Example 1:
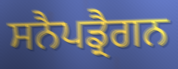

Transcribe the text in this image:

ਸਨੈਪਡ੍ਰੈਗਨ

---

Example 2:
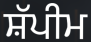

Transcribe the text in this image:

ਸ਼ੱਪੀਮ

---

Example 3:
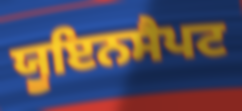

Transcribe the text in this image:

ਯੂਇਨਸੈਪਟ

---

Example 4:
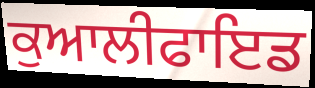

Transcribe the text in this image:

ਕੁਆਲੀਫਾਇਡ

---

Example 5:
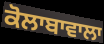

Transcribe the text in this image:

ਕੋਲਾਬਾਵਾਲਾ